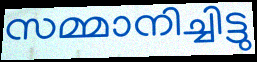
സമ്മാനിച്ചിട്ടു